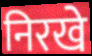
निरखे